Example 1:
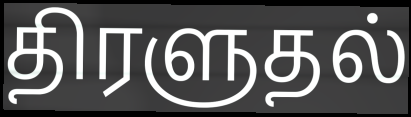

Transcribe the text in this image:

திரளுதல்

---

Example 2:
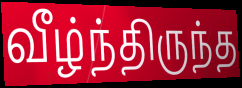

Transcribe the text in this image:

வீழ்ந்திருந்த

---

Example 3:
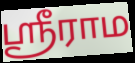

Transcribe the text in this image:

ஸ்ரீராம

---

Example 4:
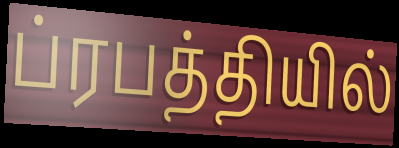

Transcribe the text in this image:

ப்ரபத்தியில்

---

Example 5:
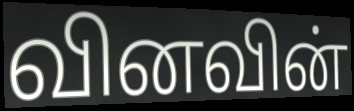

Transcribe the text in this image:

வினவின்